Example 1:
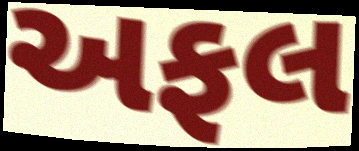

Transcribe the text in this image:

અફલ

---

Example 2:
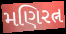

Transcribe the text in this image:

મણિરત્ન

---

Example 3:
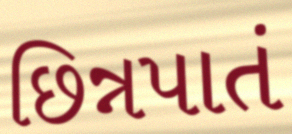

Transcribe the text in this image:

છિન્નપાતં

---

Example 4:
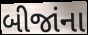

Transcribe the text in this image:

બીજાંના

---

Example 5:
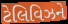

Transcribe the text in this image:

ટેલિવિઝને